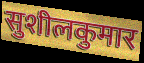
सुशीलकुमार